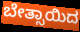
ಬೇತ್ಸಾಯಿದ